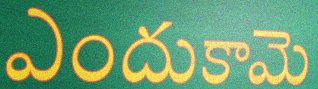
ఎందుకామె